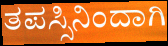
ತಪಸ್ಸಿನಿಂದಾಗಿ